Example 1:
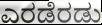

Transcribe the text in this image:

ಎರಡೆರಡು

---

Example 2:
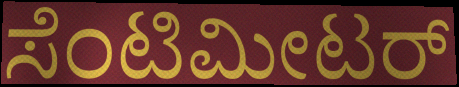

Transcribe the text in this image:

ಸೆಂಟಿಮೀಟರ್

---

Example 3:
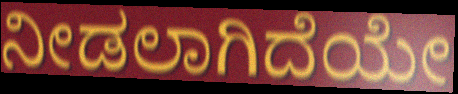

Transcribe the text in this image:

ನೀಡಲಾಗಿದೆಯೇ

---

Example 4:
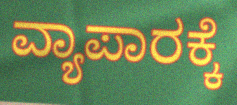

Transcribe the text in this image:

ವ್ಯಾಪಾರಕ್ಕೆ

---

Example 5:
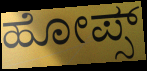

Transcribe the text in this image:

ಹೋಪ್ಸ್